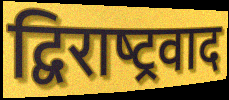
द्विराष्ट्रवाद